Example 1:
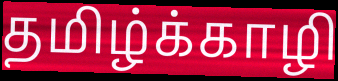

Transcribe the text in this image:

தமிழ்க்காழி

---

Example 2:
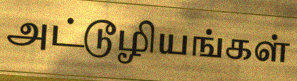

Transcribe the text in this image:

அட்டூழியங்கள்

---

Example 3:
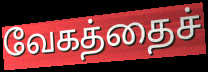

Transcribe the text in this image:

வேகத்தைச்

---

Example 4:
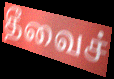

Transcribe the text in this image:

தீவைச்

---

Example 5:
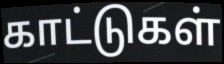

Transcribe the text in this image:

காட்டுகள்